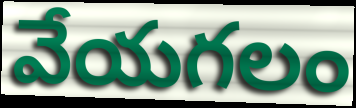
వేయగలం